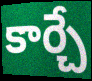
కార్చే